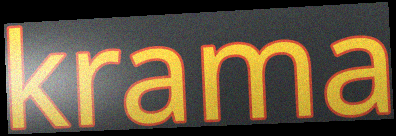
krama